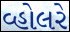
વ્હોલરે